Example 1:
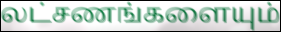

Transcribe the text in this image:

லட்சணங்களையும்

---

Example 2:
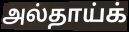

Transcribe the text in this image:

அல்தாய்க்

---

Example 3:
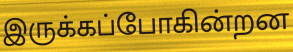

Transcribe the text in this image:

இருக்கப்போகின்றன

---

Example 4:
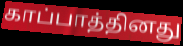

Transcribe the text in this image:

காப்பாத்தினது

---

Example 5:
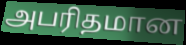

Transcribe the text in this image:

அபரிதமான